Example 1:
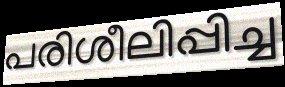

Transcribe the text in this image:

പരിശീലിപ്പിച്ച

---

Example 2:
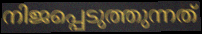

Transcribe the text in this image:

നിജപ്പെടുത്തുന്നത്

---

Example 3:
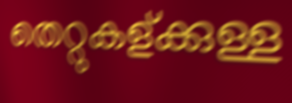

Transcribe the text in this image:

തെറ്റുകള്ക്കുള്ള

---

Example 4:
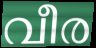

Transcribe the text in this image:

വീര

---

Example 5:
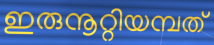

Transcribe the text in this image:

ഇരുനൂറ്റിയമ്പത്